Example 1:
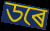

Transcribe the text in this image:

ডৰে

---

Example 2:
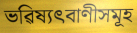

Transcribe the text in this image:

ভৱিষ্যৎবাণীসমূহ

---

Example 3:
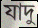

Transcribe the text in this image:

যাদু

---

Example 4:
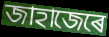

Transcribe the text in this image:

জাহাজেৰে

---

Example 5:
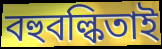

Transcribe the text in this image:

বহুবল্কিতাই